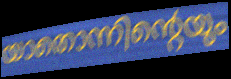
യാതൊന്നിന്റെയും